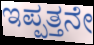
ಇಪ್ಪತ್ತನೇ